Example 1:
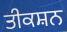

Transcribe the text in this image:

ਤੀਕਸ਼ਨ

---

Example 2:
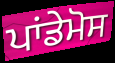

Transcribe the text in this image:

ਪਾਂਡੇਮੋਸ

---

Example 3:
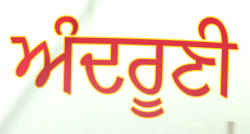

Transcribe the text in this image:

ਅੰਦਰੂਣੀ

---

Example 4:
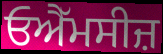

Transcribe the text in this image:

ਓਐੱਮਸੀਜ਼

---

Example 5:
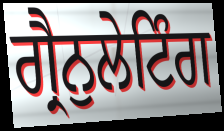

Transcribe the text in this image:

ਗ੍ਰੈਨੁਲੇਟਿੰਗ